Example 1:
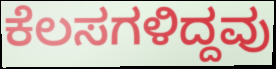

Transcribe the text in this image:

ಕೆಲಸಗಳಿದ್ದವು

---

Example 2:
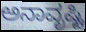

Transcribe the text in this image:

ಅನಾವೃಷ್ಟಿ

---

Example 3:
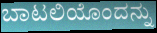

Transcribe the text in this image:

ಬಾಟಲಿಯೊಂದನ್ನು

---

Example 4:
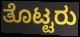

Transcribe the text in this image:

ತೊಟ್ಟರು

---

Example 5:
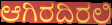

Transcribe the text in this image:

ಆಗಿರದಿರಲಿ